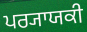
ਪਰ੍ਯਾਯਕੀ